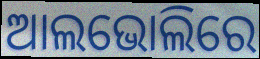
ଆଲଭୋଲିରେ